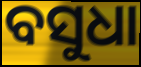
ବସୁଧା